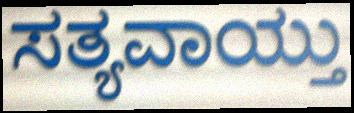
ಸತ್ಯವಾಯ್ತು